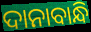
ଦାନାବାନ୍ଧି